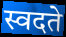
स्वदते